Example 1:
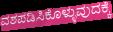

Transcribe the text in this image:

ವಶಪಡಿಸಿಕೊಳ್ಳುವುದಕ್ಕೆ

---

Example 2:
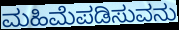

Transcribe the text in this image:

ಮಹಿಮೆಪಡಿಸುವನು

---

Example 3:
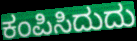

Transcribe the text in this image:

ಕಂಪಿಸಿದುದು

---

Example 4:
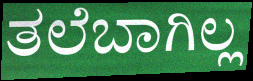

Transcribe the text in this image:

ತಲೆಬಾಗಿಲ್ಲ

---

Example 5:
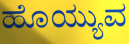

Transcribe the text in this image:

ಹೊಯ್ಯುವ